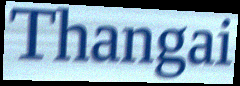
Thangai